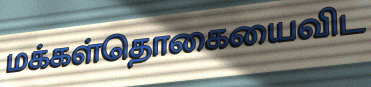
மக்கள்தொகையைவிட